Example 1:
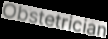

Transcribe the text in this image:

Obstetrician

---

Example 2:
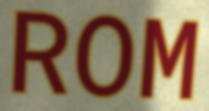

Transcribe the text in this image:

ROM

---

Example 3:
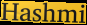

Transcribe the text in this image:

Hashmi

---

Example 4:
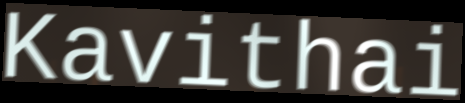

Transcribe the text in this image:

Kavithai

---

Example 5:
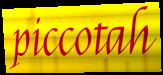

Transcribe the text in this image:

piccotah